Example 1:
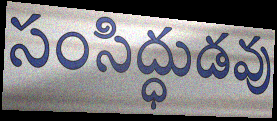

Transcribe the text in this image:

సంసిద్ధుడవు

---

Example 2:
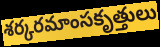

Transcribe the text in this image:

శర్కరమాంసకృత్తులు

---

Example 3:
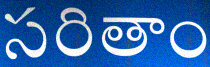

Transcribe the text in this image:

సరితాం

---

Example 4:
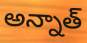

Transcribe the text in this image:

అన్నాత్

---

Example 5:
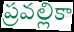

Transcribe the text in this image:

ప్రవల్లికా